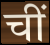
चीं